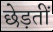
छेड़तीं